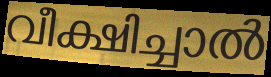
വീക്ഷിച്ചാൽ